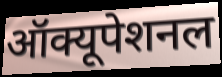
ऑक्यूपेशनल